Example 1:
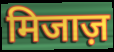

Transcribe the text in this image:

मिजाज़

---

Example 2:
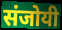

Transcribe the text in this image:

संजोयी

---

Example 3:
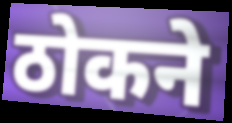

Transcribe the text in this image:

ठोकने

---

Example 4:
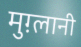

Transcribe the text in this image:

मुग़्लानी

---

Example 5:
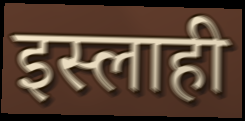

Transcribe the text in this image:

इस्लाही